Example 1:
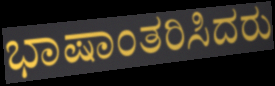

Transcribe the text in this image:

ಭಾಷಾಂತರಿಸಿದರು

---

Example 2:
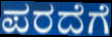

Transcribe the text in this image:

ಪರದೆಗೆ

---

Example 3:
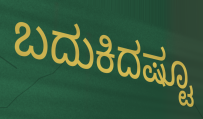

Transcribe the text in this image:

ಬದುಕಿದಷ್ಟೂ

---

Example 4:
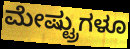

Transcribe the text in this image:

ಮೇಷ್ಟ್ರುಗಳೂ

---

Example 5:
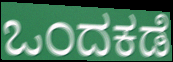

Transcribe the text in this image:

ಒಂದಕಡೆ